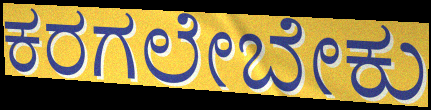
ಕರಗಲೇಬೇಕು